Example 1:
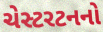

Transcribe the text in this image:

ચેસ્ટરટનનો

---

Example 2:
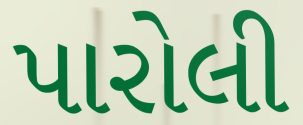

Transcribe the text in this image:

પારોલી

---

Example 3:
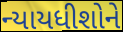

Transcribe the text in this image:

ન્યાયધીશોને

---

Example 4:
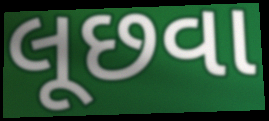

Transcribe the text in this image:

લૂછવા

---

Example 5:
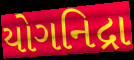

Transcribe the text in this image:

યોગનિદ્રા